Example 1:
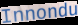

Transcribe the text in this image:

Innondu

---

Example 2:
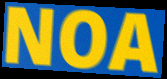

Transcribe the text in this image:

NOA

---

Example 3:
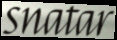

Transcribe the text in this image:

snatar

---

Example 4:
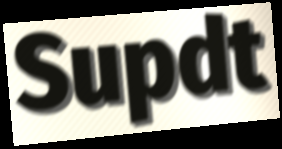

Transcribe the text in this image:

Supdt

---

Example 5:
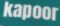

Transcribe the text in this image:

kapoor